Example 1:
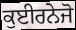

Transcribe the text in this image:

ਕੁਈਰਨੇਜੋ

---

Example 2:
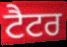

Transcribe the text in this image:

ਟੈਟਰ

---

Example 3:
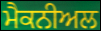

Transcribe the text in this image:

ਮੈਕਨੀਅਲ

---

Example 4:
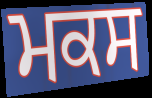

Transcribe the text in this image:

ਮਕਸ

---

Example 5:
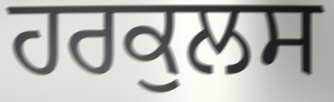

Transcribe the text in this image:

ਹਰਕੁਲਸ